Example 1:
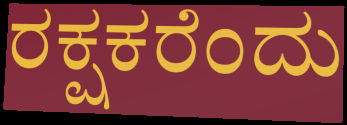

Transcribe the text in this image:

ರಕ್ಷಕರೆಂದು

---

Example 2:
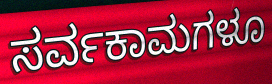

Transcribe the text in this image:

ಸರ್ವಕಾಮಗಳೂ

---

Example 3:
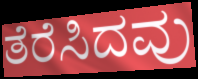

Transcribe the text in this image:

ತೆರೆಸಿದವು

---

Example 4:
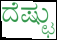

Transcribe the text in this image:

ದೆಷ್ಟು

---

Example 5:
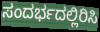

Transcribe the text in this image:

ಸಂದರ್ಭದಲ್ಲಿರಿಸಿ